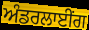
ਅੰਡਰਲਾਈੰਗ